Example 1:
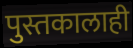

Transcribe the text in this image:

पुस्तकालाही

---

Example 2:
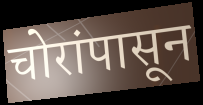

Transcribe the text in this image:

चोरांपासून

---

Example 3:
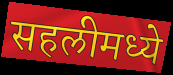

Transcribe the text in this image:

सहलीमध्ये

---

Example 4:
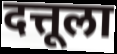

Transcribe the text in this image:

दत्तूला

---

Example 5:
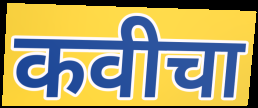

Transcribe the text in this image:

कवीचा